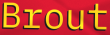
Brout